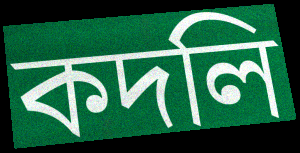
কদলি